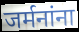
जर्मनांना